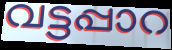
വട്ടപ്പാറ